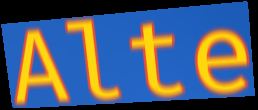
Alte